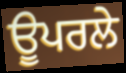
ਊਪਰਲੇ